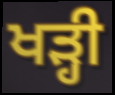
ਖੜ੍ਹੀ